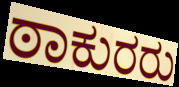
ಠಾಕುರರು